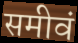
समीवं